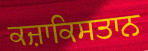
ਕਜ਼ਾਕਿਸਤਾਨ